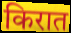
किरात